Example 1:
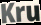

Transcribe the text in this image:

Kru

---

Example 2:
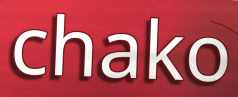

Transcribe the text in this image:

chako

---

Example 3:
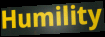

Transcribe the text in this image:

Humility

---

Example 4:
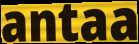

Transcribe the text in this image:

antaa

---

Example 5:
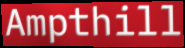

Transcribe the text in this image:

Ampthill